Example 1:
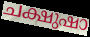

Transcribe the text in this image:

ചക്ഷുഷാ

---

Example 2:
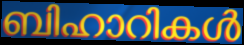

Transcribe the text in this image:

ബിഹാറികൾ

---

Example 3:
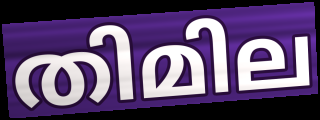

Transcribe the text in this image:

തിമില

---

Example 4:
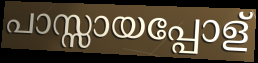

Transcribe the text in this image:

പാസ്സായപ്പോള്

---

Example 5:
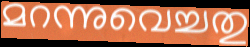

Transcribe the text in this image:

മറന്നുവെച്ചതു